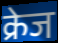
क्रेज